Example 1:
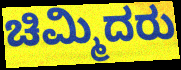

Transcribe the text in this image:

ಚಿಮ್ಮಿದರು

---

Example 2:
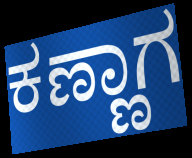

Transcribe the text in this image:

ಕಣ್ಣಾಗ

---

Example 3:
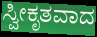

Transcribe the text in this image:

ಸ್ವೀಕೃತವಾದ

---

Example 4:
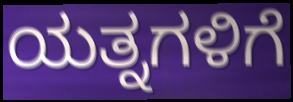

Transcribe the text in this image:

ಯತ್ನಗಳಿಗೆ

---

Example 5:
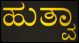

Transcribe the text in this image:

ಹುತ್ವಾ